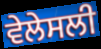
ਵੇਲੇਸਲੀ